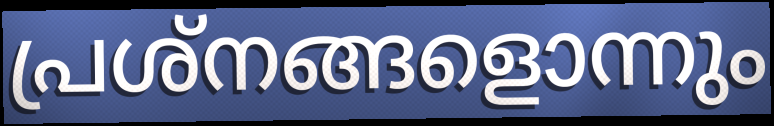
പ്രശ്നങ്ങളൊന്നും